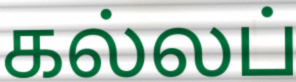
கல்லப்